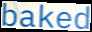
baked